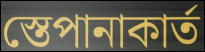
স্তেপানাকার্ত